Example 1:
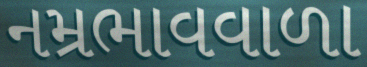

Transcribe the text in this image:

નમ્રભાવવાળા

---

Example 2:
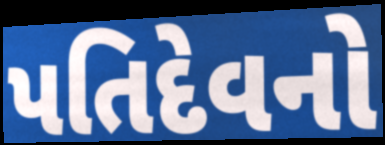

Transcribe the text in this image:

પતિદેવનો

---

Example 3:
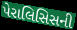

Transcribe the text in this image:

પેરાલિસિસની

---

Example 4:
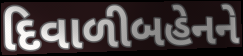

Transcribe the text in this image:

દિવાળીબહેનને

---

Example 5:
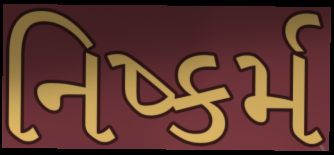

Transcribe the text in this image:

નિષ્કર્મ